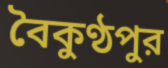
বৈকুণ্ঠপুর